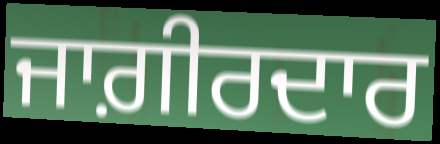
ਜਾਗ਼ੀਰਦਾਰ